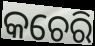
କଚେରି